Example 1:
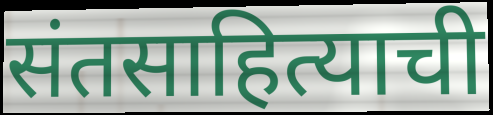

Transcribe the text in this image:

संतसाहित्याची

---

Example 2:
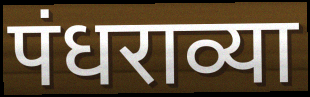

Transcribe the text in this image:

पंधराव्या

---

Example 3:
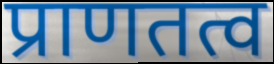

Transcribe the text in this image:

प्राणतत्व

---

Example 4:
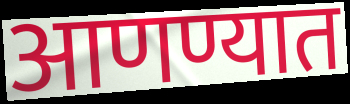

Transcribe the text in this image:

आणण्यात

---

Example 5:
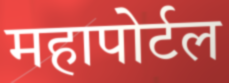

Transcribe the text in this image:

महापोर्टल